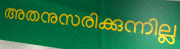
അതനുസരിക്കുന്നില്ല